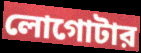
লোগোটার